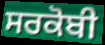
ਸਰਕੋਬੀ